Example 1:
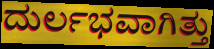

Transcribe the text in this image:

ದುರ್ಲಭವಾಗಿತ್ತು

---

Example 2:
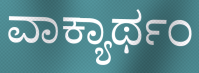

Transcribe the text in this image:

ವಾಕ್ಯಾರ್ಥಂ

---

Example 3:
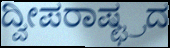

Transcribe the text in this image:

ದ್ವೀಪರಾಷ್ಟ್ರದ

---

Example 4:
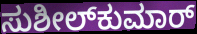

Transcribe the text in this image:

ಸುಶೀಲ್‌ಕುಮಾರ್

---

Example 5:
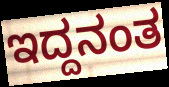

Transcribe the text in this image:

ಇದ್ದನಂತ